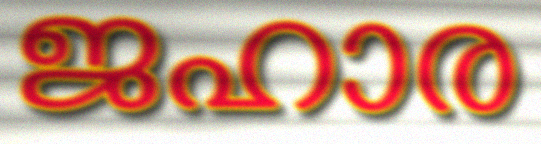
ജഹാര